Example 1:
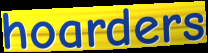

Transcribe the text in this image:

hoarders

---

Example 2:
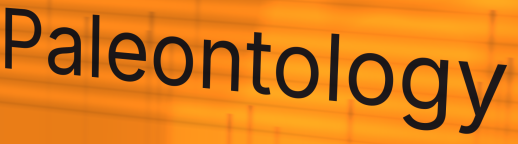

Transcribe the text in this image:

Paleontology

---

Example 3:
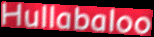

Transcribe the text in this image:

Hullabaloo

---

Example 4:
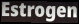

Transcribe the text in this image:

Estrogen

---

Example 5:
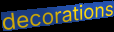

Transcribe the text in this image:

decorations